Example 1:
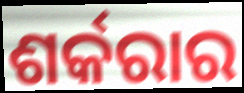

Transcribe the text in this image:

ଶର୍କରାର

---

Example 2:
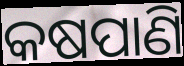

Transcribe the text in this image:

କଷପାଣି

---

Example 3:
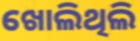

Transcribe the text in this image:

ଖୋଲିଥିଲି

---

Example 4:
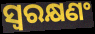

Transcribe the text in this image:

ସ୍ୱରକ୍ଷଣଂ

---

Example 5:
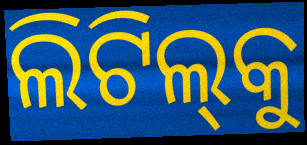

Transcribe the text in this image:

ଲିଟିଲ୍‌କୁ